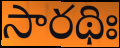
సారథిః